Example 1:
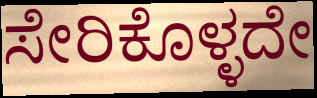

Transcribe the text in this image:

ಸೇರಿಕೊಳ್ಳದೇ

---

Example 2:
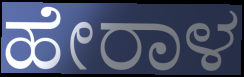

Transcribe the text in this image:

ಹೇರಾಳ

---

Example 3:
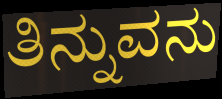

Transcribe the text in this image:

ತಿನ್ನುವನು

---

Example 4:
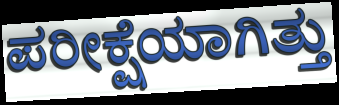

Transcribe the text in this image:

ಪರೀಕ್ಷೆಯಾಗಿತ್ತು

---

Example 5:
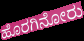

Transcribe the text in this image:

ಹೊರಗಿನೋರು